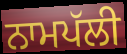
ਨਾਮਪੱਲੀ